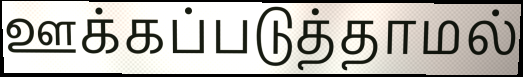
ஊக்கப்படுத்தாமல்